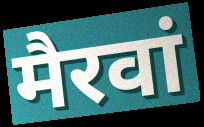
मैरवां